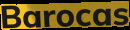
Barocas